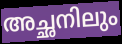
അച്ഛനിലും